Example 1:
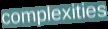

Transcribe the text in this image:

complexities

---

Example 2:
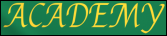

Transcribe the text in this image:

ACADEMY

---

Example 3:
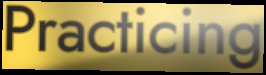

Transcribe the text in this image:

Practicing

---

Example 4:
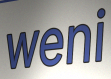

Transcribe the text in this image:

weni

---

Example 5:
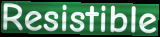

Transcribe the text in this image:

Resistible